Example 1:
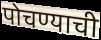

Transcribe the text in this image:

पोचण्याची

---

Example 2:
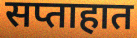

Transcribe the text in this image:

सप्ताहात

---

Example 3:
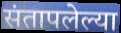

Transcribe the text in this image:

संतापलेल्या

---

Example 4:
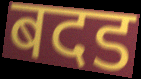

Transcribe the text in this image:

बदड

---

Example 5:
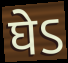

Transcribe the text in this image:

घेऽ